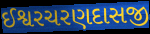
ઈશ્વરચરણદાસજી